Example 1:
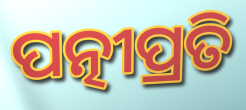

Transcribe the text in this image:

ପତ୍ନୀପ୍ରତି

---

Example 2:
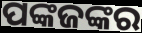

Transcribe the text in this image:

ପଙ୍କଜଙ୍କର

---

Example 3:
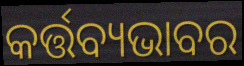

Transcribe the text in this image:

କର୍ତ୍ତବ୍ୟଭାବର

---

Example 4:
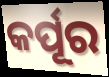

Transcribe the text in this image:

କର୍ପୂର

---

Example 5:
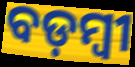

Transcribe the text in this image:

ବଡ଼ମ୍ବୀ